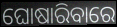
ଘୋଷାରିବାରେ